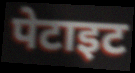
पेटाइट